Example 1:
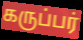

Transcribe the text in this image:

கருப்பர்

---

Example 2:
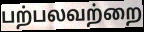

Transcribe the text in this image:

பற்பலவற்றை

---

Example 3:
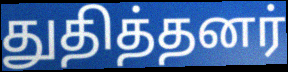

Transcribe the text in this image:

துதித்தனர்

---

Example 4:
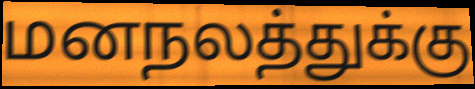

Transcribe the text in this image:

மனநலத்துக்கு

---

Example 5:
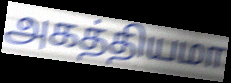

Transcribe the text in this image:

அகத்தியமா